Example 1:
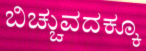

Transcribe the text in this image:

ಬಿಚ್ಚುವದಕ್ಕೂ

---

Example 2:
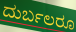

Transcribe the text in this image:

ದುರ್ಬಲರೂ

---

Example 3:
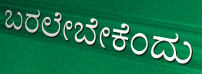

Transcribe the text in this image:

ಬರಲೇಬೇಕೆಂದು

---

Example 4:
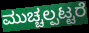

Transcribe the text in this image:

ಮುಚ್ಚಲ್ಪಟ್ಟರೆ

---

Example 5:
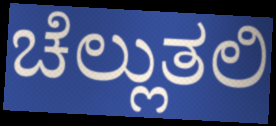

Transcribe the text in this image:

ಚೆಲ್ಲುತಲಿ